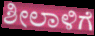
ಶೀಲಾಳಿಗೆ